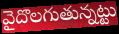
వైదొలగుతున్నట్టు